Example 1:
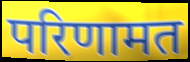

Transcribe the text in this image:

परिणामत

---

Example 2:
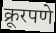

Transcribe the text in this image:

क्रूरपणे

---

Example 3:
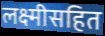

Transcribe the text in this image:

लक्ष्मीसहित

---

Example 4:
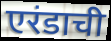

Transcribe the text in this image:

एरंडाची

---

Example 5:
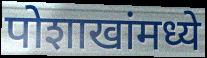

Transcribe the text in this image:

पोशाखांमध्ये